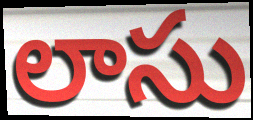
లాసు